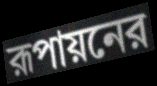
রূপায়নের